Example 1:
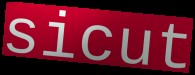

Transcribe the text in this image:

sicut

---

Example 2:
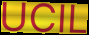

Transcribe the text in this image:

UCIL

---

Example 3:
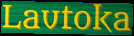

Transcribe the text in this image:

Lautoka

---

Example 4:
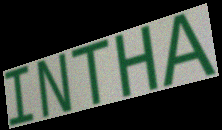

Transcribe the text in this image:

INTHA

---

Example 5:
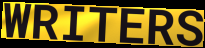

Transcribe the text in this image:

WRITERS